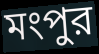
মংপুর